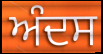
ਅੰਦਸ